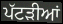
ਪੱਟੜੀਆਂ